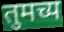
तुमच्य